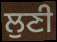
ਲੁਣੀ